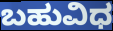
ಬಹುವಿಧ